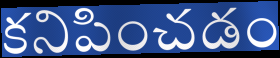
కనిపించడం